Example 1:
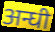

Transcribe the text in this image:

अन्धी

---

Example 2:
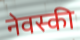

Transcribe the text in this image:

नेवस्की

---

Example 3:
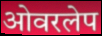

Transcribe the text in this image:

ओवरलेप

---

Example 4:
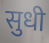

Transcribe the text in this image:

सुधी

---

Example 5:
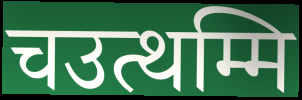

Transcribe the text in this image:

चउत्थम्मि